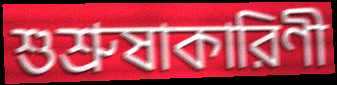
শুশ্রুষাকারিণী